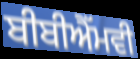
ਬੀਬੀਐੱਮਵੀ